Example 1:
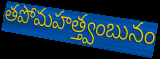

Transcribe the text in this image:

తపోమహత్త్వంబునం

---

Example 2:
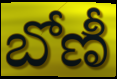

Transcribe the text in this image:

బోణీ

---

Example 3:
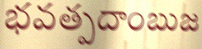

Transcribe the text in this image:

భవత్పదాంబుజ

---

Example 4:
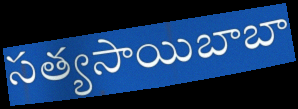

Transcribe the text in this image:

సత్యసాయిబాబా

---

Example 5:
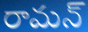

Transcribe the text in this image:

రామన్